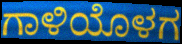
ಗಾಳಿಯೊಳಗ